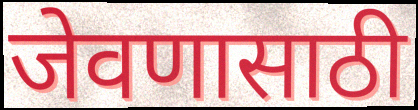
जेवणासाठी